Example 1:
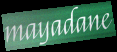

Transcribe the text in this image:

mayadane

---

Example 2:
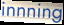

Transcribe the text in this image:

innning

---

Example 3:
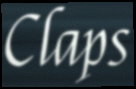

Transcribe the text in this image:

Claps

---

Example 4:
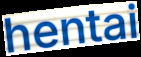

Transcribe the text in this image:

hentai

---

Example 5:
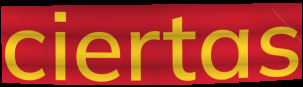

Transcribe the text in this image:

ciertas